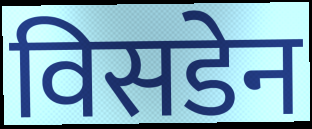
विसडेन